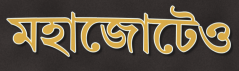
মহাজোটেও